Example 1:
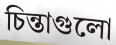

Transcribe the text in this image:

চিন্তাগুলো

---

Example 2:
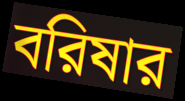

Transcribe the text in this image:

বরিষার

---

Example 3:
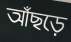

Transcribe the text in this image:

আঁছড়ে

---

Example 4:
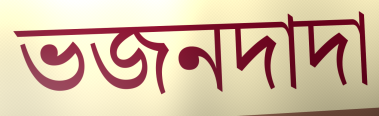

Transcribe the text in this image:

ভজনদাদা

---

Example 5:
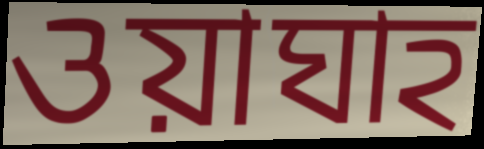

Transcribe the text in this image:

ওয়াঘাহ